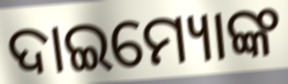
ଦାଇମ୍ଯୋଙ୍କ